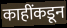
काहींकडून